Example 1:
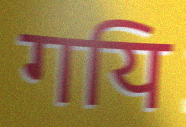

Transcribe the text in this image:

गयि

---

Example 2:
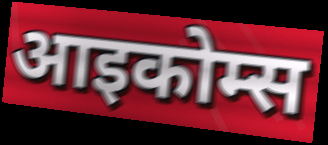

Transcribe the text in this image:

आइकोम्स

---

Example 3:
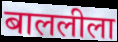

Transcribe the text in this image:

बाललीला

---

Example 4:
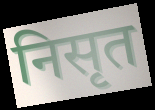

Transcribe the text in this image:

निसृत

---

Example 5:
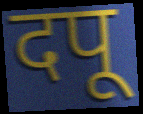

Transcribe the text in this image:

दपू